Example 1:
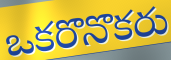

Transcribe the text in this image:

ఒకరొనొకరు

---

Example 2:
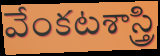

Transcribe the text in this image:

వేంకటశాస్త్రి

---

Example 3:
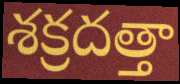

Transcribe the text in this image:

శక్రదత్తా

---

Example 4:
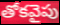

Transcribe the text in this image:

తోకవైపు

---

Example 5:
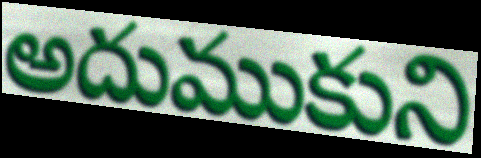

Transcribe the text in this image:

అదుముకుని